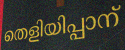
തെളിയിപ്പാന്